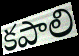
కపాలి